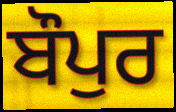
ਬੌਪੁਰ